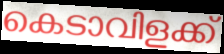
കെടാവിളക്ക്